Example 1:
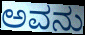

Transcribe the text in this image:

ಅವನು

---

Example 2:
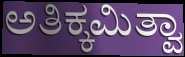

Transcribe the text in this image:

ಅತಿಕ್ಕಮಿತ್ವಾ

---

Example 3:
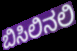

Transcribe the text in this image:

ಬಿಸಿಲಿನಲಿ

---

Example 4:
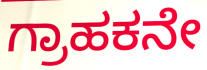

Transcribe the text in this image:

ಗ್ರಾಹಕನೇ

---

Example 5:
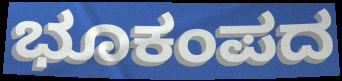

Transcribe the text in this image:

ಭೂಕಂಪದ